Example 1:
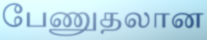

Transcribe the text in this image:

பேணுதலான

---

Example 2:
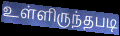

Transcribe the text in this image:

உள்ளிருந்தபடி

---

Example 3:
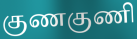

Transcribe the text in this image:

குணகுணி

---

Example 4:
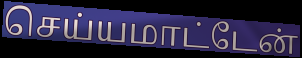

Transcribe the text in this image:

செய்யமாட்டேன்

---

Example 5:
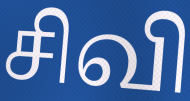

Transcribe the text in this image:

சிவி